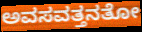
ಅವಸವತ್ತನತೋ